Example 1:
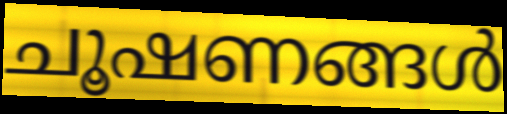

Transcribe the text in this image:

ചൂഷണങ്ങൾ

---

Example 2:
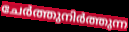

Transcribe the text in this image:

ചേർത്തുനിർത്തുന്ന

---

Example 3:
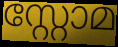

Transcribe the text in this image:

സ്റ്റോമ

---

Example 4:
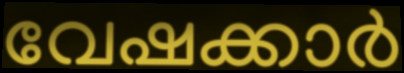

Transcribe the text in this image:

വേഷക്കാർ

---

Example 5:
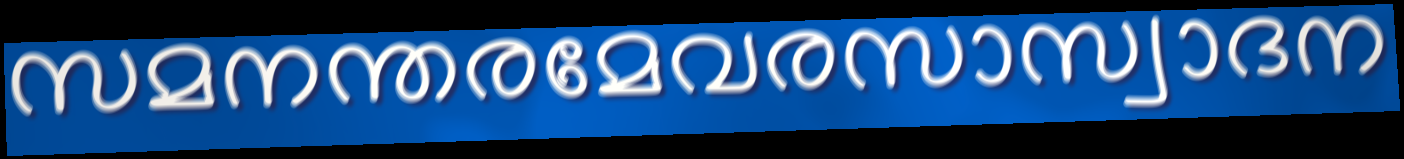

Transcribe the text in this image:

സമനന്തരമേവരസാസ്വാദന